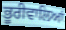
ਭੂਰੀਵਾਲਿਆਂ